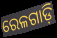
ରେଳଗାଡ଼ି